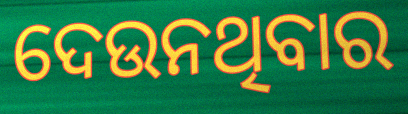
ଦେଉନଥିବାର